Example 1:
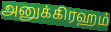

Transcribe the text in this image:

அனுக்கிரஹம்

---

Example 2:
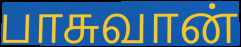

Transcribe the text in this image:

பாசுவான்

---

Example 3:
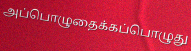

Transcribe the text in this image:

அப்பொழுதைக்கப்பொழுது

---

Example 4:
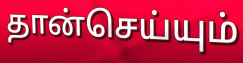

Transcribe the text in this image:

தான்செய்யும்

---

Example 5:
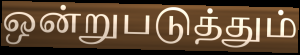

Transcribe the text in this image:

ஒன்றுபடுத்தும்